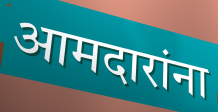
आमदारांना